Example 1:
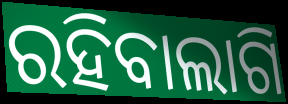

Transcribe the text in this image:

ରହିବାଲାଗି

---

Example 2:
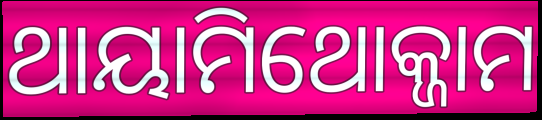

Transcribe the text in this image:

ଥାୟାମିଥୋକ୍ଜାମ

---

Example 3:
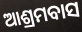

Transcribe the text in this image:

ଆଶ୍ରମବାସ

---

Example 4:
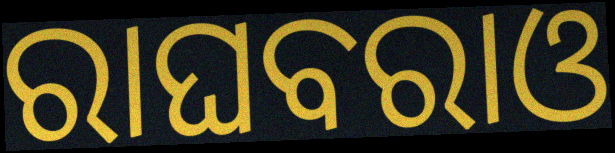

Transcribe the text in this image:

ରାଘବରାଓ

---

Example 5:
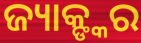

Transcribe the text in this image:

ଜ୍ୟାକ୍ଙ୍କର